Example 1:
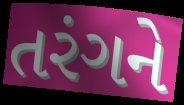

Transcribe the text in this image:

તરંગને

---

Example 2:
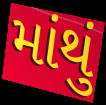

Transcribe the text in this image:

માંથું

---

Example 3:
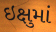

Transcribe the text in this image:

ઇક્ષુમાં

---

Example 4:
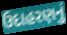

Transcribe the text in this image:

ઉદાહરણનું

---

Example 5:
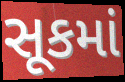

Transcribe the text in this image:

સૂકમાં